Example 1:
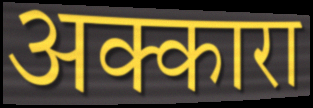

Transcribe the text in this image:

अक्कारा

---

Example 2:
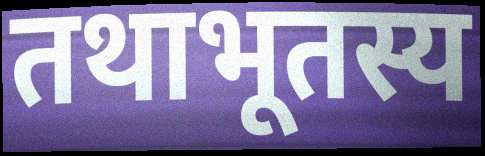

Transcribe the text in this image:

तथाभूतस्य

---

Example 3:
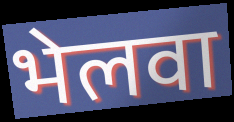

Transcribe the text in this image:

भेलवा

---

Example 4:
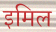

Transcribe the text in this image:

इमिल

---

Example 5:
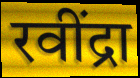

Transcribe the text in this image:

रवींद्रा